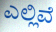
ಎಲ್ಲಿವೆ